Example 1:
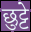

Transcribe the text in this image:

छुट्टे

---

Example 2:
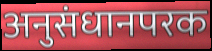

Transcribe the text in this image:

अनुसंधानपरक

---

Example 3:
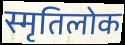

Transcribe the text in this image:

स्मृतिलोक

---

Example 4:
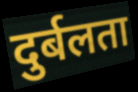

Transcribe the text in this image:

दुर्बलता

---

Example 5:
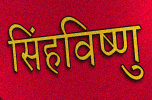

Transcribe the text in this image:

सिंहविष्णु